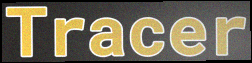
Tracer